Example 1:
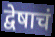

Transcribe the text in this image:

द्वेषाचं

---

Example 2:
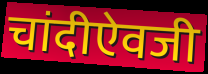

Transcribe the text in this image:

चांदीऐवजी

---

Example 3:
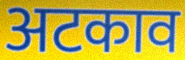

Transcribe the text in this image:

अटकाव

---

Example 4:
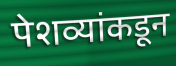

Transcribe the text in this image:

पेशव्यांकडून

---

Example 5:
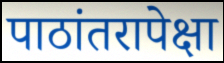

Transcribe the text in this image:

पाठांतरापेक्षा